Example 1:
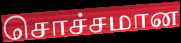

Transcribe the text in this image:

சொச்சமான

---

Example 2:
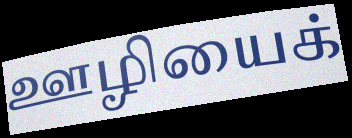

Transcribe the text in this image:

ஊழியைக்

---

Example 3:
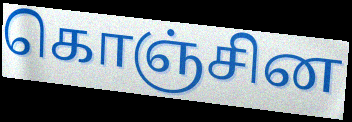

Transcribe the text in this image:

கொஞ்சின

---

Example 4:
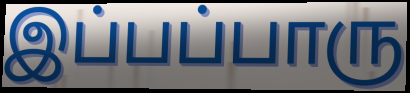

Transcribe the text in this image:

இப்பப்பாரு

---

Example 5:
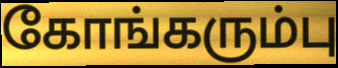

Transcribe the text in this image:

கோங்கரும்பு